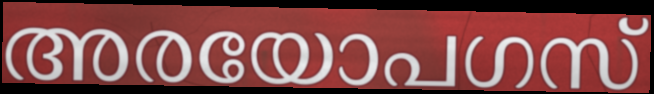
അരയോപഗസ്